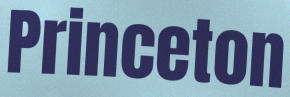
Princeton